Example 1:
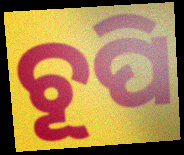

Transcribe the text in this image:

ଚୂପି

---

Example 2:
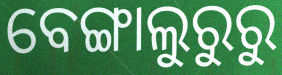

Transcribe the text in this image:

ବେଙ୍ଗାଲୁରୁରୁ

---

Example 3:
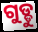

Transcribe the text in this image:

ଗୁଡ୍ଡୁ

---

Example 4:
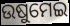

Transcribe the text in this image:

ଉଷୁମେଇ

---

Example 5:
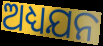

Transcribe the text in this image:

ଅଧ୍ୟଯନ